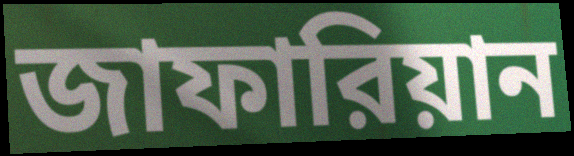
জাফারিয়ান